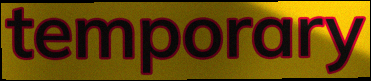
temporary